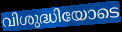
വിശുദ്ധിയോടെ